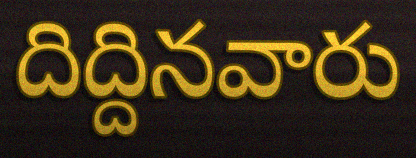
దిద్దినవారు